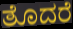
ತೊದರೆ